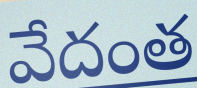
వేదంత